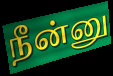
நீன்னு